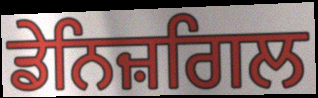
ਡੇਨਿਜ਼ਗਿਲ